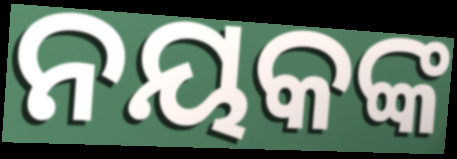
ନୟକଙ୍କ